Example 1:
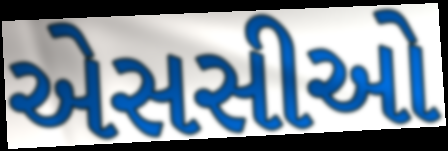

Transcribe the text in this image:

એસસીઓ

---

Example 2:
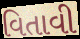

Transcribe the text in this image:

વિતાવી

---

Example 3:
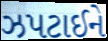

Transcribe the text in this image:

ઝપટાઈને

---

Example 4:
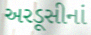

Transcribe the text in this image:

અરડૂસીનાં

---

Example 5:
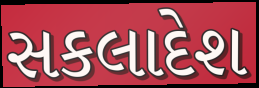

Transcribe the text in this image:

સકલાદેશ